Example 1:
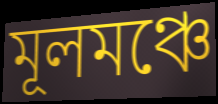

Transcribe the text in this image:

মূলমঞ্চে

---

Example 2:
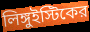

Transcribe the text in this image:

লিঙ্গুইস্টিকের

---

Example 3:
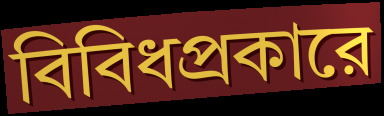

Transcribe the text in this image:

বিবিধপ্রকারে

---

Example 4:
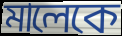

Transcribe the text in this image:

মালেকে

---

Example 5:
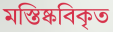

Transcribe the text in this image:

মস্তিষ্কবিকৃত